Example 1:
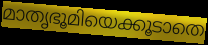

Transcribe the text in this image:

മാതൃഭൂമിയെക്കൂടാതെ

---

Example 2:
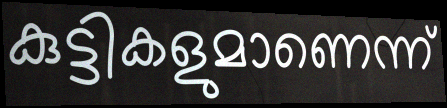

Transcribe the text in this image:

കുട്ടികളുമാണെന്ന്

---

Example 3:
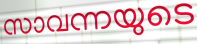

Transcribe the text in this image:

സാവന്നയുടെ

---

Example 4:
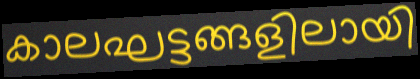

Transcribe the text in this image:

കാലഘട്ടങ്ങളിലായി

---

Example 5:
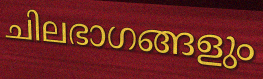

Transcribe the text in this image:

ചിലഭാഗങ്ങളും